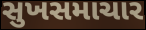
સુખસમાચાર